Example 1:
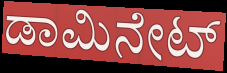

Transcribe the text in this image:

ಡಾಮಿನೇಟ್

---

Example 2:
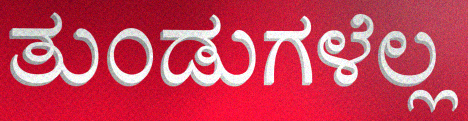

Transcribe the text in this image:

ತುಂಡುಗಳೆಲ್ಲ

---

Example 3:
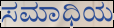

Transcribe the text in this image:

ಸಮಾಧಿಯ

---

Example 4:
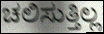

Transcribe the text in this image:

ಚಲಿಸುತ್ತಿಲ್ಲ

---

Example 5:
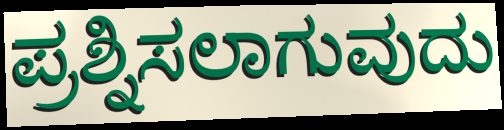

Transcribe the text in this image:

ಪ್ರಶ್ನಿಸಲಾಗುವುದು